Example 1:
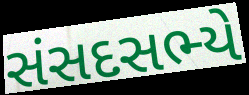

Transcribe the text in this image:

સંસદસભ્યે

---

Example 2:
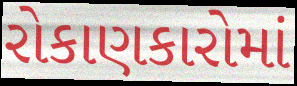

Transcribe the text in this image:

રોકાણકારોમાં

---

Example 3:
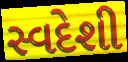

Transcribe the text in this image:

સ્વદેશી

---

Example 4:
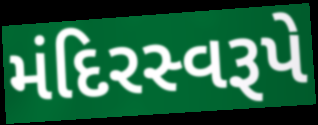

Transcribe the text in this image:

મંદિરસ્વરૂપે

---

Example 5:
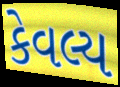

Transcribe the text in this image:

કેવલ્ય